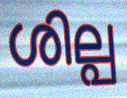
ശില്പ